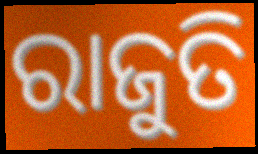
ରାଜୁତି